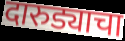
दारुड्याचा